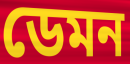
ডেমন